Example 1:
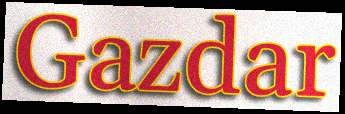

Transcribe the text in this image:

Gazdar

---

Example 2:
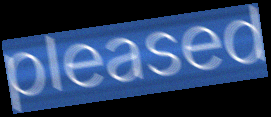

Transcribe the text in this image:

pleased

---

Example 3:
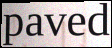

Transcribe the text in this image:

paved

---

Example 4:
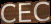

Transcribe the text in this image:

CEC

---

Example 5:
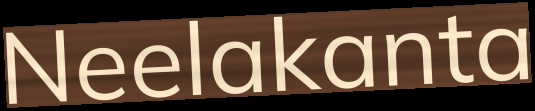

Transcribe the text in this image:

Neelakanta